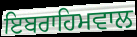
ਇਬਰਾਹਿਮਵਾਲ